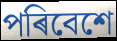
পৰিবেশে